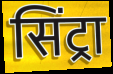
सिंट्रा